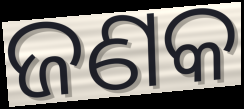
ଜଣକ